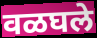
वळघले